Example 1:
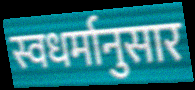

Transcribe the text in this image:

स्वधर्मानुसार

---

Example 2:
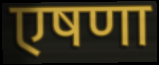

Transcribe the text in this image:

एषणा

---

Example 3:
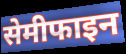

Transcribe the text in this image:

सेमीफाइन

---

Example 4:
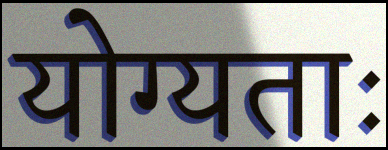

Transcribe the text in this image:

योग्यताः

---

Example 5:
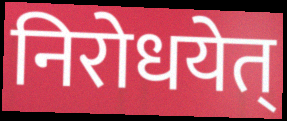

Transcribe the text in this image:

निरोधयेत्